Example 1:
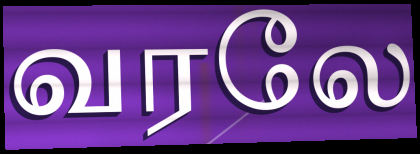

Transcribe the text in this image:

வரலே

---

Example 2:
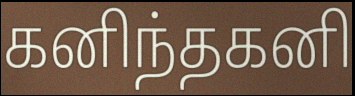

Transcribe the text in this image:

கனிந்தகனி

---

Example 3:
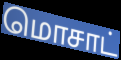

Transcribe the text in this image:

மொசாட்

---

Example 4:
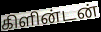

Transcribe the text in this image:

கிளின்டன்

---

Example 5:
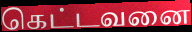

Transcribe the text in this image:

கெட்டவனை